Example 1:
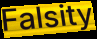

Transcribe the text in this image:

Falsity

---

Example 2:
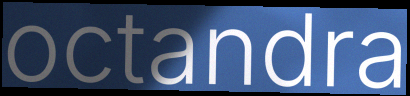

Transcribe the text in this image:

octandra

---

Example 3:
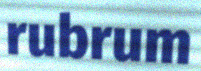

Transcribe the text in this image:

rubrum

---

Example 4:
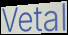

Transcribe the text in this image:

Vetal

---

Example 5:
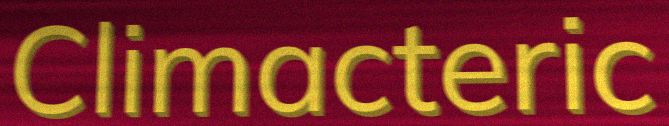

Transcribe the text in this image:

Climacteric